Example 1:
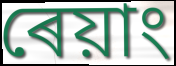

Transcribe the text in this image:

ৰেয়াং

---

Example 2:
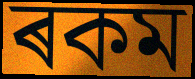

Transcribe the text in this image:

ৰকম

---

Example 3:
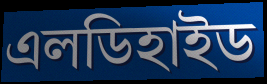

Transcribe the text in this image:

এলডিহাইড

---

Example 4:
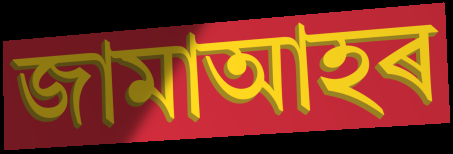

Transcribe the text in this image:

জামাআহৰ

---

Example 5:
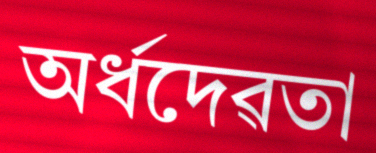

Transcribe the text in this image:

অৰ্ধদেৱতা